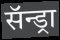
सॅन्ड्रा